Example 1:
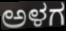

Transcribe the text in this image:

ಅಳಗ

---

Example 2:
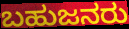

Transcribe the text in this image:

ಬಹುಜನರು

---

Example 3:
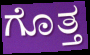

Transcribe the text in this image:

ಗೊತ್ತ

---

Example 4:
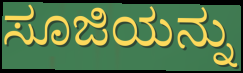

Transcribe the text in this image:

ಸೂಜಿಯನ್ನು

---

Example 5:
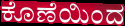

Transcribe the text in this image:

ಕೊಣೆಯಿಂದ